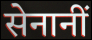
सेनानीं